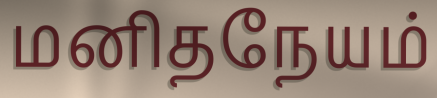
மனிதநேயம்